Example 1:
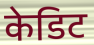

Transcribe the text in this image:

केडिट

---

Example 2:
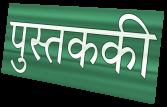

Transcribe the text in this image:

पुस्तककी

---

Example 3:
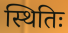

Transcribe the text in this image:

स्थितिः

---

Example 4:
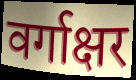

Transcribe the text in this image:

वर्गाक्षर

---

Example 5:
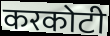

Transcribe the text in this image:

करकोटी